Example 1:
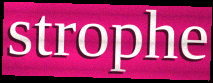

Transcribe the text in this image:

strophe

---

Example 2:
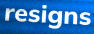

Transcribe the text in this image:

resigns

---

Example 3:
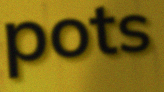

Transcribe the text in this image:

pots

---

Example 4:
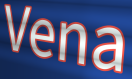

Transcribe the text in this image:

Vena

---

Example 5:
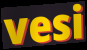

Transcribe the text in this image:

vesi